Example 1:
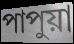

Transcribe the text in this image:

পাপুয়া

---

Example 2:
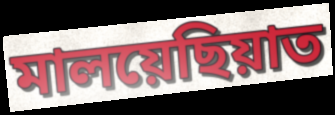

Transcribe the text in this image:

মালয়েছিয়াত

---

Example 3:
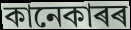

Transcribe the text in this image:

কানেকাৰৰ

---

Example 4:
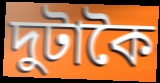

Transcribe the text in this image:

দুটাকৈ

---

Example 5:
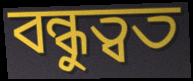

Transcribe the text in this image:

বন্ধুত্বত